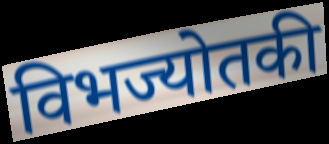
विभज्योतकी